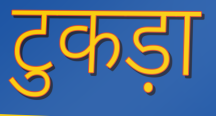
टुकड़ा